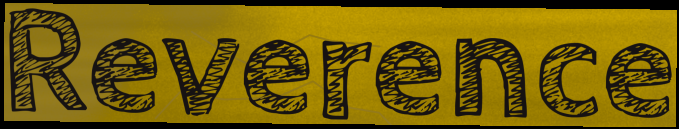
Reverence